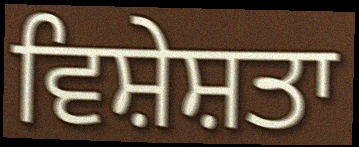
ਵਿਸ਼ੇਸ਼ਤਾ